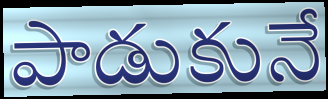
పాడుకునే